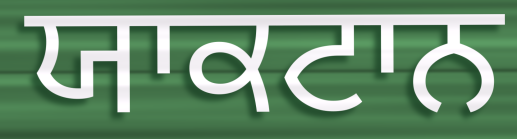
ਯਾਕਟਾਨ